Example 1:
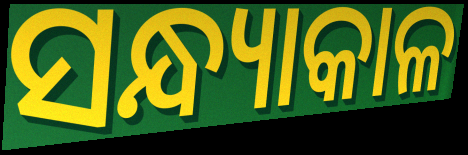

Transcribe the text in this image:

ସନ୍ଧ୍ୟାକାଳ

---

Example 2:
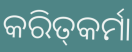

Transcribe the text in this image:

କରିତ୍‍କର୍ମା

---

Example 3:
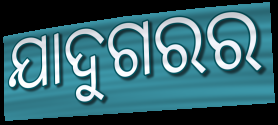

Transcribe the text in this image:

ଯାଦୁଗରର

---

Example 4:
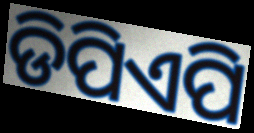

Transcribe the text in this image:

ଡିପିଏପି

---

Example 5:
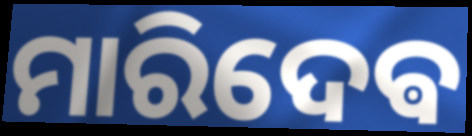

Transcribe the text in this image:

ମାରିଦେଵ